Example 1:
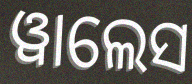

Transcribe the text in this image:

ୱାଲେସ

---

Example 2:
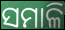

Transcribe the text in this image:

ସମାଳି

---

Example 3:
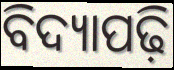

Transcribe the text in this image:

ବିଦ୍ୟାପଢ଼ି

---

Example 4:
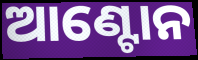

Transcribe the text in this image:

ଆଣ୍ଟୋନ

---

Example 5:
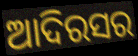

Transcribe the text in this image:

ଆଦିରସର